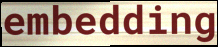
embedding